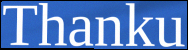
Thanku